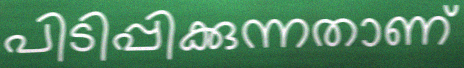
പിടിപ്പിക്കുന്നതാണ്